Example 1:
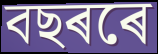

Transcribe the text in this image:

বছৰৰে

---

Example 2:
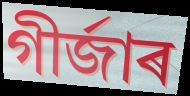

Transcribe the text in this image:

গীৰ্জাৰ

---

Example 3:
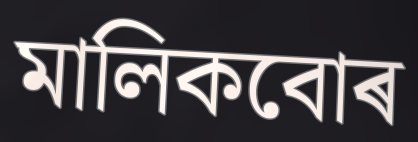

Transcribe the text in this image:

মালিকবোৰ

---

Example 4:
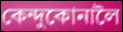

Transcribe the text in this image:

কেন্দুকোনালৈ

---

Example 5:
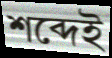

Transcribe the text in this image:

শব্দেই